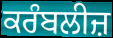
ਕਰੰਬਲੀਜ਼